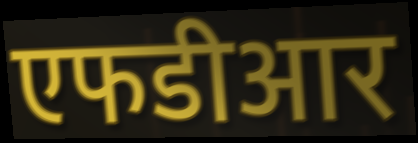
एफडीआर